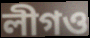
লীগও